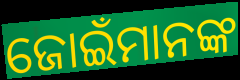
ଜୋଇଁମାନଙ୍କ